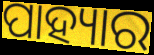
ପାହ୍ୟାର